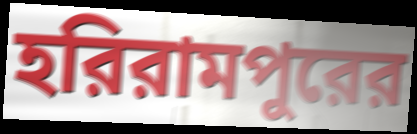
হরিরামপুরের